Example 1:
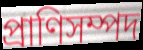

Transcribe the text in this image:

প্রাণিসম্পদ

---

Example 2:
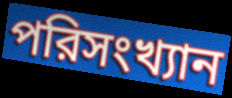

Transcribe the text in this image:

পরিসংখ্যান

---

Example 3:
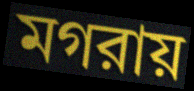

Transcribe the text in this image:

মগরায়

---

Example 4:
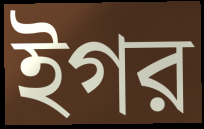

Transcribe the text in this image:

ইগর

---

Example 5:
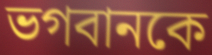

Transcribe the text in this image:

ভগবানকে